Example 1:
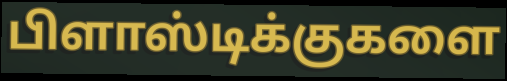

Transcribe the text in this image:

பிளாஸ்டிக்குகளை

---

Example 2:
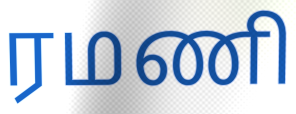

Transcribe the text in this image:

ரமணி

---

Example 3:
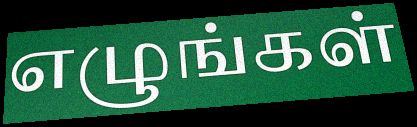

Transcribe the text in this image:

எழுங்கள்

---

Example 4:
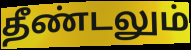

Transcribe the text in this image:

தீண்டலும்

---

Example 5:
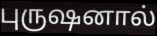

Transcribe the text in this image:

புருஷனால்